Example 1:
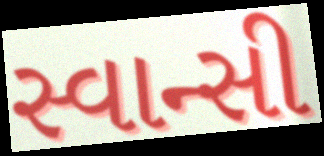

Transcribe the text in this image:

સ્વાન્સી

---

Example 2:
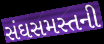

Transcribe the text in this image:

સંઘસમસ્તની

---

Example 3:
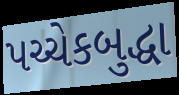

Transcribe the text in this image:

પચ્ચેકબુદ્ધા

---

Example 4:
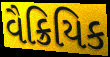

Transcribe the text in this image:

વૈક્રિયિક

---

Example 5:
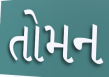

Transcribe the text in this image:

તોમન